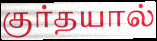
குர்தயால்